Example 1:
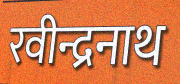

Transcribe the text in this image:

रवीन्द्रनाथ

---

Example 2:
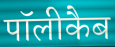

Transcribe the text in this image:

पॉलीकैब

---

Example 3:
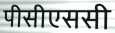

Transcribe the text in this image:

पीसीएससी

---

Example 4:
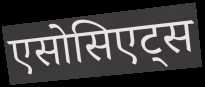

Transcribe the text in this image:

एसोसिएट्स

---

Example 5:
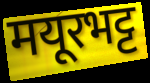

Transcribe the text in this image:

मयूरभट्ट